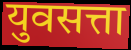
युवसत्ता